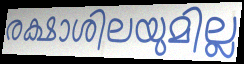
രക്ഷാശിലയുമില്ല